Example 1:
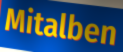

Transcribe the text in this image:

Mitalben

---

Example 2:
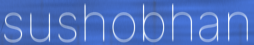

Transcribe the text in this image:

sushobhan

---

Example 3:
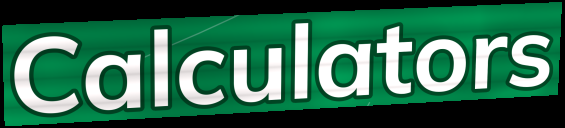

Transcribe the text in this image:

Calculators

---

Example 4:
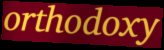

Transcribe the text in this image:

orthodoxy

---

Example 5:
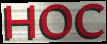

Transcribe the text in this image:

HOC